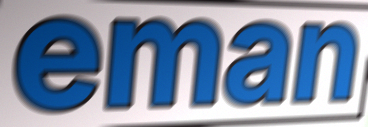
eman